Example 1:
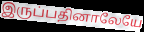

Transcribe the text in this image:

இருப்பதினாலேயே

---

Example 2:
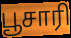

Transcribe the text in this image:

பூசாரி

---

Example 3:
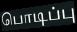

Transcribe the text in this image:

பொடிப்பு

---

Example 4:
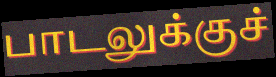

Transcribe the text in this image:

பாடலுக்குச்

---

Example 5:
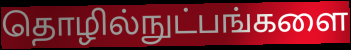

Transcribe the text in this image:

தொழில்நுட்பங்களை